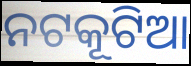
ନଟକୂଟିଆ